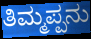
ತಿಮ್ಮಪ್ಪನು